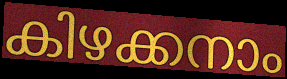
കിഴക്കനാം